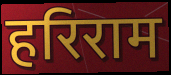
हरिराम